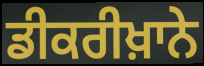
ਡੀਕਰੀਖ਼ਾਨੇ